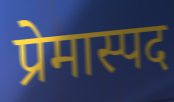
प्रेमास्पद